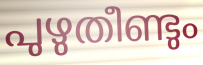
പുഴുതീണ്ടും